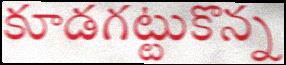
కూడగట్టుకొన్న